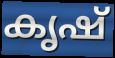
കൃഷ്